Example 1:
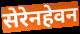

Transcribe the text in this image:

सेरेनहेवन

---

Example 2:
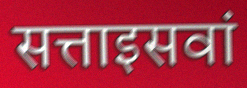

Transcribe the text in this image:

सत्ताइसवां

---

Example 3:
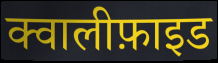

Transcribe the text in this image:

क्वालीफ़ाइड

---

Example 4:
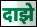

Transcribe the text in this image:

दाझे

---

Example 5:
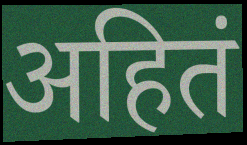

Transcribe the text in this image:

अहितं